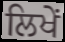
ਲਿਖੇਂ